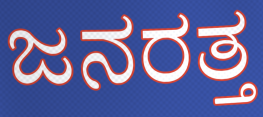
ಜನರತ್ತ